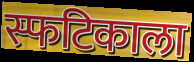
स्फटिकाला